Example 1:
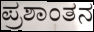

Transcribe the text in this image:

ಪ್ರಶಾಂತನ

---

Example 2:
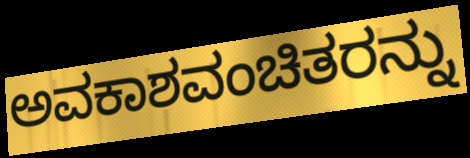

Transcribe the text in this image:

ಅವಕಾಶವಂಚಿತರನ್ನು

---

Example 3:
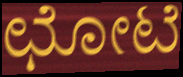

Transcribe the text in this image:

ಛೋಟೆ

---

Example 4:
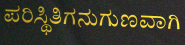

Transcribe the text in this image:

ಪರಿಸ್ಥಿತಿಗನುಗುಣವಾಗಿ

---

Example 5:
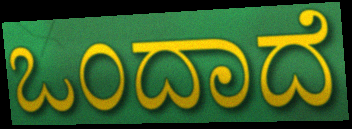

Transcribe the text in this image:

ಒಂದಾದೆ